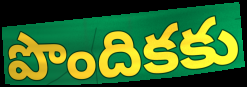
పొందికకు